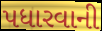
પધારવાની